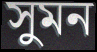
সুমন